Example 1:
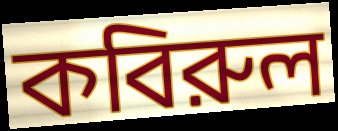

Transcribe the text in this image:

কবিরুল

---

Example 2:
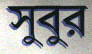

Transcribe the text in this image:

সুবুর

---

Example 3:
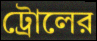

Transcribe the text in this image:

ট্রোলের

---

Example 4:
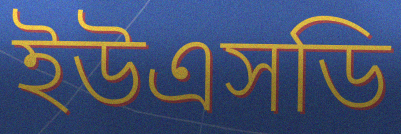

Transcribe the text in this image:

ইউএসডি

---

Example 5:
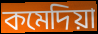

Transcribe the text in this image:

কমেদিয়া